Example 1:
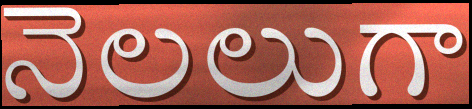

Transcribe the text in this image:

నెలలుగా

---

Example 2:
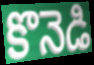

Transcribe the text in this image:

కొనెడి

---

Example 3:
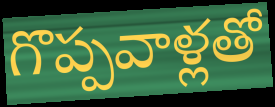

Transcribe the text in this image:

గొప్పవాళ్లతో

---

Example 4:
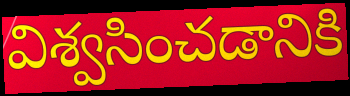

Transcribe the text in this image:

విశ్వసించడానికి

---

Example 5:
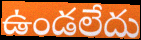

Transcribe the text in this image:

ఉండలేదు